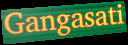
Gangasati